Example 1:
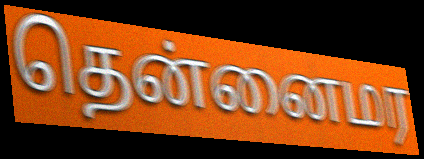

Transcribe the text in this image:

தென்னைமர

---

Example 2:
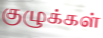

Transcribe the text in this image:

குழுக்கள்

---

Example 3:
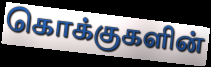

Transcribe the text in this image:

கொக்குகளின்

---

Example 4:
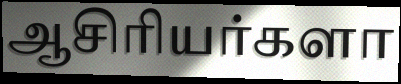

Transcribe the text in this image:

ஆசிரியர்களா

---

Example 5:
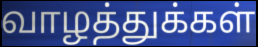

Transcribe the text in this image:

வாழத்துக்கள்